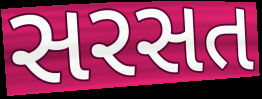
સરસત